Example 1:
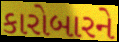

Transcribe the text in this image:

કારોબારને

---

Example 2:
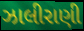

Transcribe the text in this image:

ઝાલીરાણી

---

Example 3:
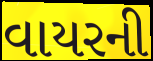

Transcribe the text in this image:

વાયરની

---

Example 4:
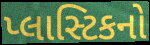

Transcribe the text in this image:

પ્લાસ્ટિકનો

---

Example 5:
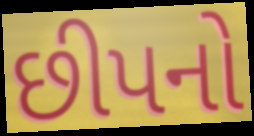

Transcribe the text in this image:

છીપનો